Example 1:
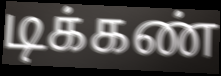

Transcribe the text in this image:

டிக்கண்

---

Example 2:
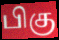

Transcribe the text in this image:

பிகு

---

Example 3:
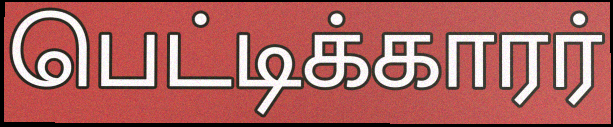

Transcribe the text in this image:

பெட்டிக்காரர்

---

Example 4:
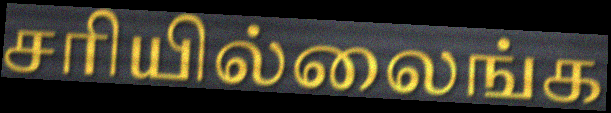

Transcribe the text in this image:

சரியில்லைங்க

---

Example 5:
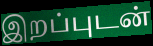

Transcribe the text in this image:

இறப்புடன்